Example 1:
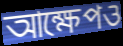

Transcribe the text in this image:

আক্ষেপও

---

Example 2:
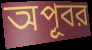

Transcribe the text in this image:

অপূবর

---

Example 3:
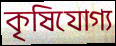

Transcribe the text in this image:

কৃষিযোগ্য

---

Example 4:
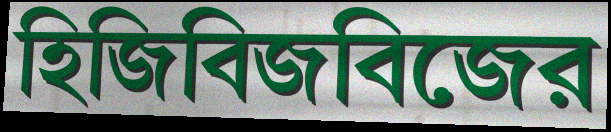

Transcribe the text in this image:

হিজিবিজবিজের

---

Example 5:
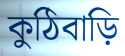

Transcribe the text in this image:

কুঠিবাড়ি